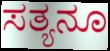
ಸತ್ಯನೂ